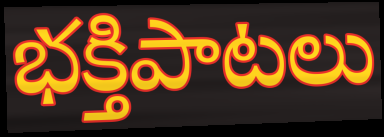
భక్తిపాటలు